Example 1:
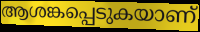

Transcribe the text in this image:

ആശങ്കപ്പെടുകയാണ്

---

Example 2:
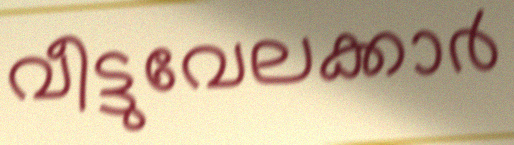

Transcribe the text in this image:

വീട്ടുവേലക്കാർ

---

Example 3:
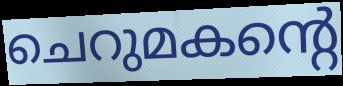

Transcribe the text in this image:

ചെറുമകന്റെ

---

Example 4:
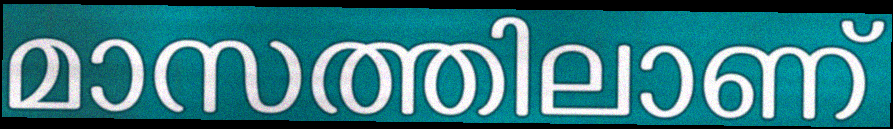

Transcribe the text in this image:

മാസത്തിലാണ്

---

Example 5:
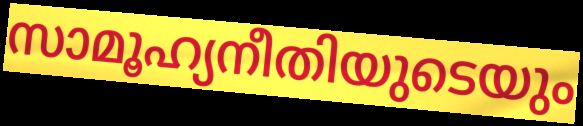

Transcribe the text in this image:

സാമൂഹ്യനീതിയുടെയും